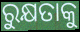
ରୁକ୍ଷତାକୁ